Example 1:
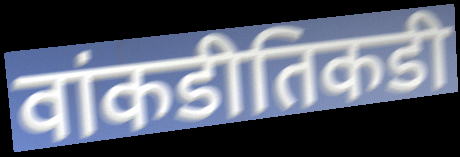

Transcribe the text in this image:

वांकडीतिकडी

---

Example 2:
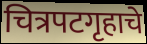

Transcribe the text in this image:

चित्रपटगृहाचे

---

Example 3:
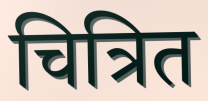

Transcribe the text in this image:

चित्रित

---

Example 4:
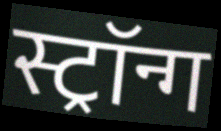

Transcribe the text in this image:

स्ट्रॉन्ग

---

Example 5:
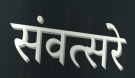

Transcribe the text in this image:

संवत्सरे